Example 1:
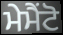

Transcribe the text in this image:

ਮੇਮੈਂਟੋ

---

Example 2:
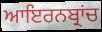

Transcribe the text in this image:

ਆਇਰਨਬ੍ਰਾਂਚ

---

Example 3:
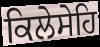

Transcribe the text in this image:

ਕਿਲੇਸੇਹਿ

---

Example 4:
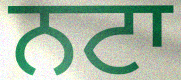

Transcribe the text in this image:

ਨਟਾ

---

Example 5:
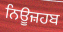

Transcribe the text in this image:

ਨਿਊਜ਼ਹਬ